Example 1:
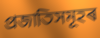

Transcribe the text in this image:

প্ৰজাতিসমূহৰ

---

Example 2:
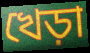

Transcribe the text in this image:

খেড়া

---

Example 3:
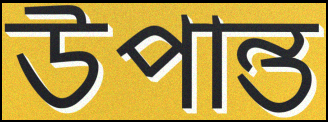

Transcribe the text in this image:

উপান্ত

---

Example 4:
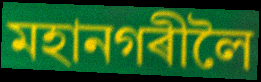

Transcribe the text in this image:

মহানগৰীলৈ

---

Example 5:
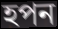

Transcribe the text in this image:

হপন